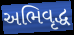
અભિવૃદ્ધ